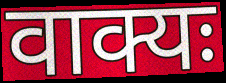
वाक्यः